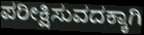
ಪರೀಕ್ಷಿಸುವದಕ್ಕಾಗಿ